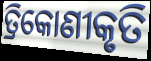
ତ୍ରିକୋଣୀକୃତି